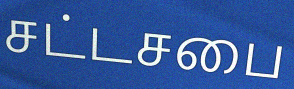
சட்டசபை